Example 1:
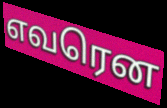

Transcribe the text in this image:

எவரென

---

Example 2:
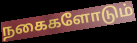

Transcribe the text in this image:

நகைகளோடும்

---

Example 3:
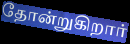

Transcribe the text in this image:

தோன்றுகிறார்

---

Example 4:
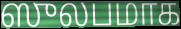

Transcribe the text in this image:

ஸுலபமாக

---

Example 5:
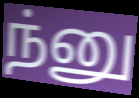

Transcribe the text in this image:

ந்னு